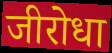
जीरोधा